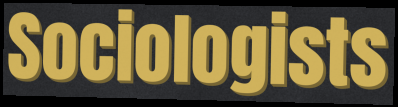
Sociologists